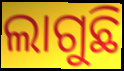
ଲାଗୁଛି